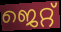
ജെറ്റ്